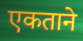
एकताने